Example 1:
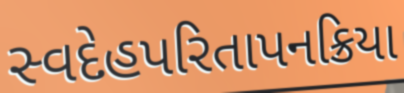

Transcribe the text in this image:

સ્વદેહપરિતાપનક્રિયા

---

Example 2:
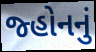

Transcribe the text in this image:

જ્હોનનું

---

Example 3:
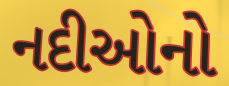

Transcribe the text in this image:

નદીઓનો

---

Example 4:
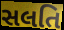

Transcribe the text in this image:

સલતિ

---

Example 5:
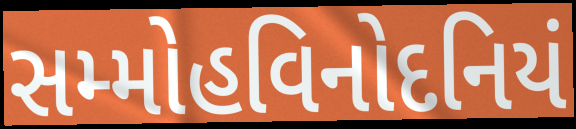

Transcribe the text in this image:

સમ્મોહવિનોદનિયં